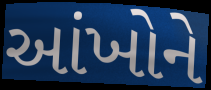
આંખોને